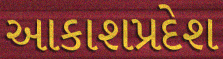
આકાશપ્રદેશ